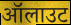
ऑलाउट